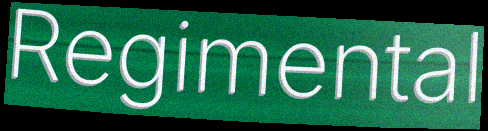
Regimental